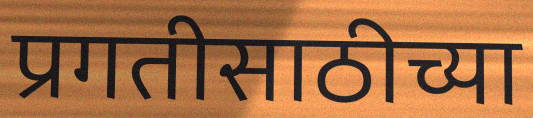
प्रगतीसाठीच्या